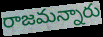
రాజమన్నారు